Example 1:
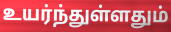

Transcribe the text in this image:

உயர்ந்துள்ளதும்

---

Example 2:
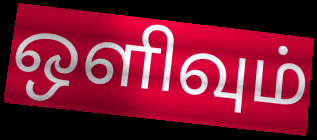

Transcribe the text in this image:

ஒளிவும்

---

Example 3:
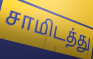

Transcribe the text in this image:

சாமிடத்து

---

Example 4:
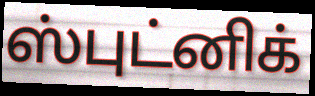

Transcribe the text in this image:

ஸ்புட்னிக்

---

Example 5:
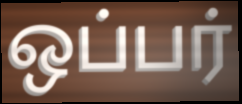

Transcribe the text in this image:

ஒப்பர்